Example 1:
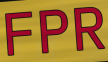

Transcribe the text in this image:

FPR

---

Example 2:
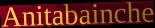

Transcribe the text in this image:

Anitabainche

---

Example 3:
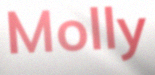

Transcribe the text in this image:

Molly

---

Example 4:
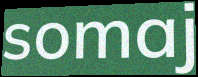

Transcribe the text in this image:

somaj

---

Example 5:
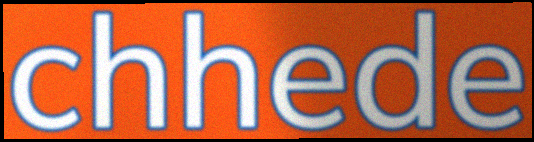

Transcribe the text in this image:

chhede